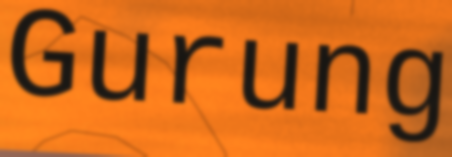
Gurung